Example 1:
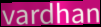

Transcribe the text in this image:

vardhan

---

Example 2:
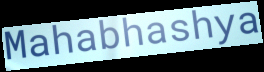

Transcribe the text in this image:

Mahabhashya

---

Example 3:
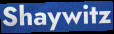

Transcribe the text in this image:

Shaywitz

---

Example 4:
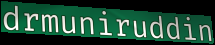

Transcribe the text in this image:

drmuniruddin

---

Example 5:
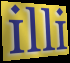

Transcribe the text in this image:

illi